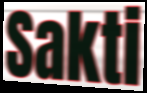
Sakti